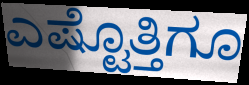
ಎಷ್ಟೊತ್ತಿಗೂ